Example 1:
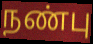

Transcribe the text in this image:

நண்பு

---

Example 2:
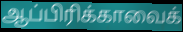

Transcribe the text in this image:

ஆப்பிரிக்காவைக்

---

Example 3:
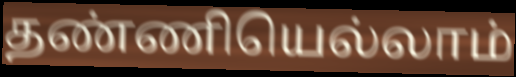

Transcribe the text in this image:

தண்ணியெல்லாம்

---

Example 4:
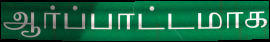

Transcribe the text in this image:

ஆர்ப்பாட்டமாக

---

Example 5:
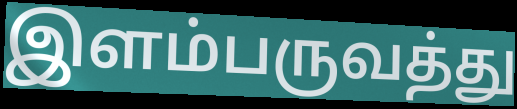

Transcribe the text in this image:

இளம்பருவத்து